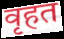
वृहत